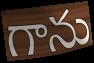
గాను